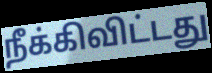
நீக்கிவிட்டது